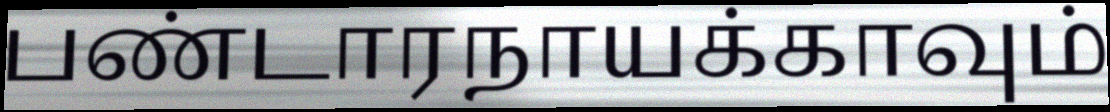
பண்டாரநாயக்காவும்